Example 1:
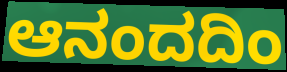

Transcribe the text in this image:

ಆನಂದದಿಂ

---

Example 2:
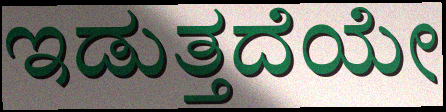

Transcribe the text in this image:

ಇಡುತ್ತದೆಯೇ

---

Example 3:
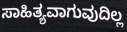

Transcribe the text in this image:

ಸಾಹಿತ್ಯವಾಗುವುದಿಲ್ಲ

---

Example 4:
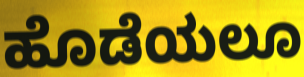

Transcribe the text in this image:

ಹೊಡೆಯಲೂ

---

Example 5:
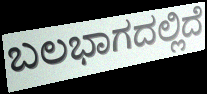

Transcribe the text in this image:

ಬಲಭಾಗದಲ್ಲಿದೆ